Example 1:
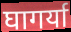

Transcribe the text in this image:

घागर्या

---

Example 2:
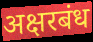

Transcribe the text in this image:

अक्षरबंध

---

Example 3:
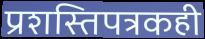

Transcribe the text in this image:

प्रशस्तिपत्रकही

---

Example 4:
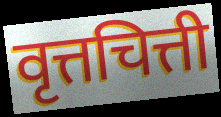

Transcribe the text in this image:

वृत्तचित्ती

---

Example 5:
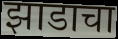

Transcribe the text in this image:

झाडाचा